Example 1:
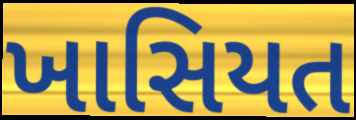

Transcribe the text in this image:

ખાસિયત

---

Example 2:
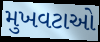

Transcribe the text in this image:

મુખવટાઓ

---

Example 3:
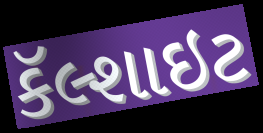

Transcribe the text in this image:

કૅલ્શાઇટ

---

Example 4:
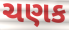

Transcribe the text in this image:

ચણક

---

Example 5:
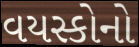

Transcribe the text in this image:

વયસ્કોનો